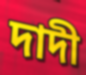
দাদী